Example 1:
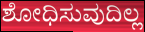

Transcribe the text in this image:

ಶೋಧಿಸುವುದಿಲ್ಲ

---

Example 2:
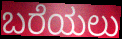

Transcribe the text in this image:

ಬರೆಯಲು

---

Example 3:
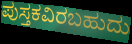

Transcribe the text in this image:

ಪುಸ್ತಕವಿರಬಹುದು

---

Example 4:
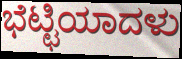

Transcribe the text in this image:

ಭೆಟ್ಟಿಯಾದಳು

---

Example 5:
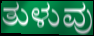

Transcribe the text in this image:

ತುಳುವು